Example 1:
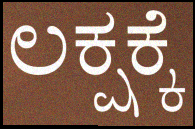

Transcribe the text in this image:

ಲಕ್ಷಕ್ಕೆ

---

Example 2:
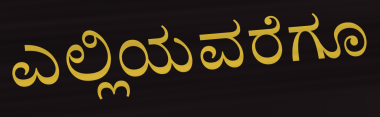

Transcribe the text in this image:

ಎಲ್ಲಿಯವರೆಗೂ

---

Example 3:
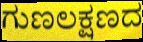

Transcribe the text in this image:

ಗುಣಲಕ್ಷಣದ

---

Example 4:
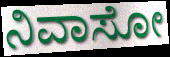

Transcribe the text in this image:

ನಿವಾಸೋ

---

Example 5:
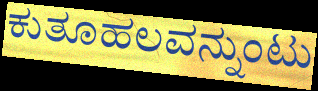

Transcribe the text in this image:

ಕುತೂಹಲವನ್ನುಂಟು